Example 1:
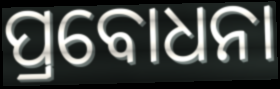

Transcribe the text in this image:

ପ୍ରବୋଧନା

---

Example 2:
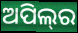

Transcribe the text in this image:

ଅପିଲ୍‍ର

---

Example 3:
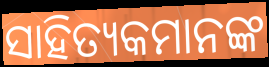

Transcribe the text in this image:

ସାହିତ୍ୟକମାନଙ୍କ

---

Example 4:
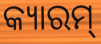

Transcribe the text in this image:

କ୍ୟାରମ୍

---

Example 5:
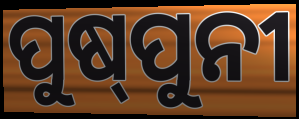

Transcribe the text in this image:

ପୁଷ୍‌ପୁନୀ